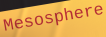
Mesosphere